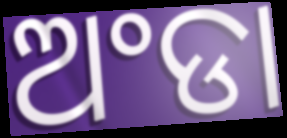
ଅଂଡା